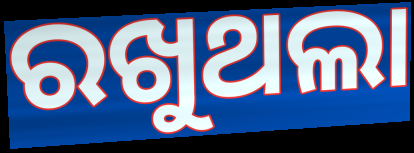
ରଖୁଥଲା